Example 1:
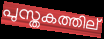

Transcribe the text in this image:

പുസ്തകത്തില്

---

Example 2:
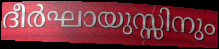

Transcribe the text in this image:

ദീർഘായുസ്സിനും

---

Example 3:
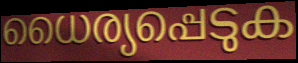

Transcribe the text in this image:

ധൈര്യപ്പെടുക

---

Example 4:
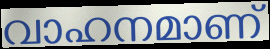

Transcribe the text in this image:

വാഹനമാണ്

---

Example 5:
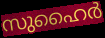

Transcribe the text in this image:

സുഹൈർ